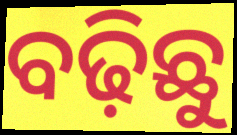
ବଢ଼ିଛୁ